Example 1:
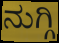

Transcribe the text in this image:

ನುಗ್ಗಿ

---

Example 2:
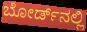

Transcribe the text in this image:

ಬೋರ್ಡ್‌ನಲ್ಲಿ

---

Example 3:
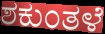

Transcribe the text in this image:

ಶಕುಂತಳೆ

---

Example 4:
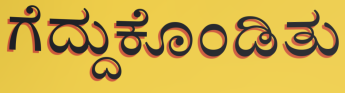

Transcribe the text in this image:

ಗೆದ್ದುಕೊಂಡಿತು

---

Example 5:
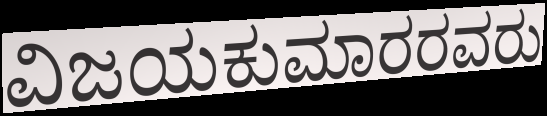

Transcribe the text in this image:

ವಿಜಯಕುಮಾರರವರು